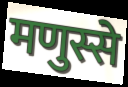
मणुस्से